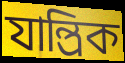
যান্ত্রিক